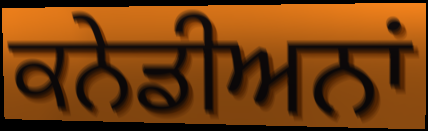
ਕਨੇਡੀਅਨਾਂ